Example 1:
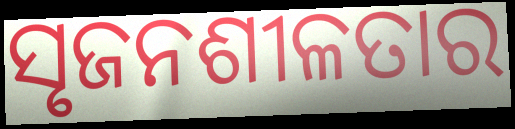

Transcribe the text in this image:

ସୃଜନଶୀଳତାର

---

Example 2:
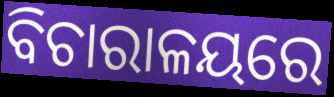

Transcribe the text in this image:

ବିଚାରାଳୟରେ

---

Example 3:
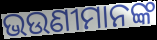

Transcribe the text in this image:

ଭଉଣୀମାନଙ୍କ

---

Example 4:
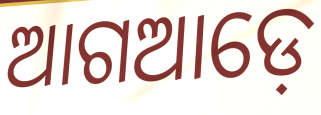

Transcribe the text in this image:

ଆଗଆଡ଼େ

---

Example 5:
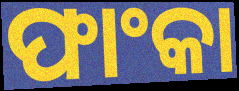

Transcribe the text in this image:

ଫାଂକା